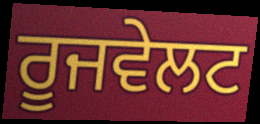
ਰੂਜਵੇਲਟ